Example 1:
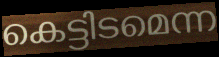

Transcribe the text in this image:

കെട്ടിടമെന്ന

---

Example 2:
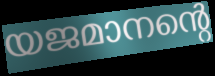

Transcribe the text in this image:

യജമാനന്റെ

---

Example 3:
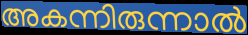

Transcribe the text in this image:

അകന്നിരുന്നാൽ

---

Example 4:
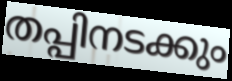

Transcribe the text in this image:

തപ്പിനടക്കും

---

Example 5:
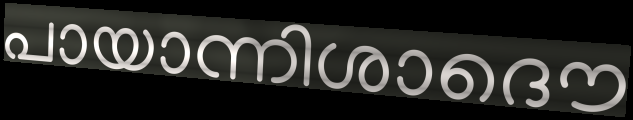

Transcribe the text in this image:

പായാന്നിശാദൌ